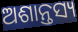
ଅଶାନ୍ତସ୍ୟ